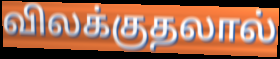
விலக்குதலால்